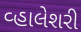
વ્હાલેશરી